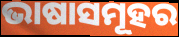
ଭାଷାସମୂହର